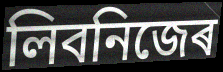
লিবনিজেৰ